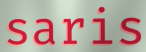
saris